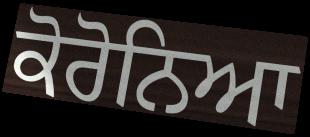
ਕੋਰੋਨਿਆ